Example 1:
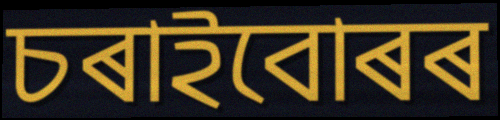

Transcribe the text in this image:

চৰাইবোৰৰ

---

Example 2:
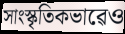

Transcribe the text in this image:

সাংস্কৃতিকভাৱেও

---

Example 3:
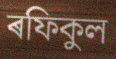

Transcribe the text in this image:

ৰফিকুল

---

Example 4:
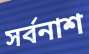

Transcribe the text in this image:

সৰ্বনাশ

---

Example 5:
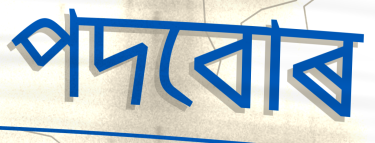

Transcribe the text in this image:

পদবোৰ